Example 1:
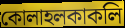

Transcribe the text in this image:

কোলাহলকাকলি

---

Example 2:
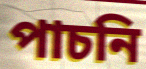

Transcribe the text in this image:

পাচনি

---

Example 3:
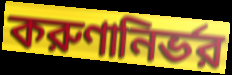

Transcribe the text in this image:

করুণানির্ভর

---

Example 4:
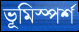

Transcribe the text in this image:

ভূমিস্পর্শ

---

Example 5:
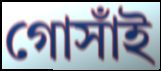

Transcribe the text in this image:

গোসাঁই